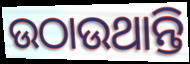
ଉଠାଉଥାନ୍ତି